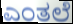
ಎಂತಲೆ